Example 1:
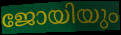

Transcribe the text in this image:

ജോയിയും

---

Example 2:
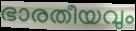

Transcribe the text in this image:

ഭാരതീയവും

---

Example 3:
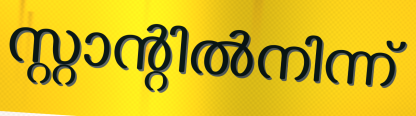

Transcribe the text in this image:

സ്റ്റാന്റിൽനിന്ന്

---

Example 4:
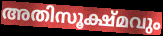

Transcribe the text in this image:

അതിസൂക്ഷ്മവും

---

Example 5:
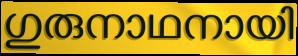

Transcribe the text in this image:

ഗുരുനാഥനായി